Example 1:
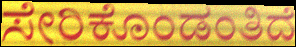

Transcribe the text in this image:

ಸೇರಿಕೊಂಡಂತಿದೆ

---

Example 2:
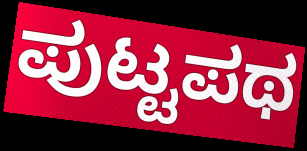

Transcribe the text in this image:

ಪುಟ್ಟಪಥ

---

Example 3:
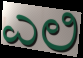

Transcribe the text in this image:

ಎಲಿ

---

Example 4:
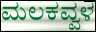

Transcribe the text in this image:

ಮಲಕವ್ವಳ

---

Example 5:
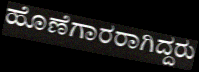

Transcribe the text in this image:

ಹೊಣೆಗಾರರಾಗಿದ್ದರು